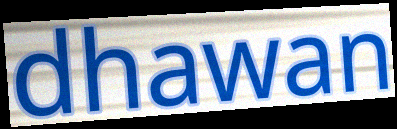
dhawan